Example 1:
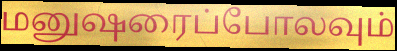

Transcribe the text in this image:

மனுஷரைப்போலவும்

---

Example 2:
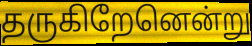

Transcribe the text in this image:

தருகிறேனென்று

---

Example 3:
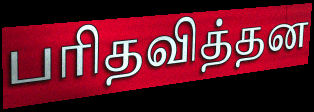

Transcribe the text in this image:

பரிதவித்தன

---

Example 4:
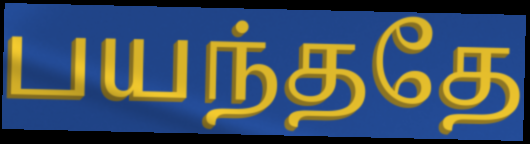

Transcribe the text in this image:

பயந்ததே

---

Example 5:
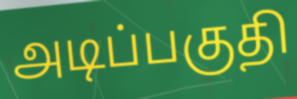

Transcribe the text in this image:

அடிப்பகுதி